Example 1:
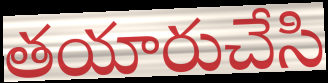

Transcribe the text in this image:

తయారుచేసి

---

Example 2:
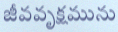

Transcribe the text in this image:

జీవవృక్షమును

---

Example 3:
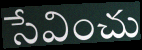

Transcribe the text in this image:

సేవించు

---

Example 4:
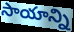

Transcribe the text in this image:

సాయాన్ని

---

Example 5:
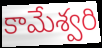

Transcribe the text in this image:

కామేశ్వరి